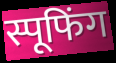
स्पूफिंग